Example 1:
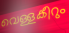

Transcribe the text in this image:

വെള്ളകീറും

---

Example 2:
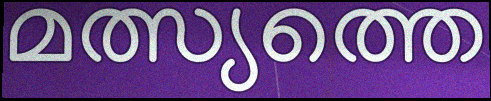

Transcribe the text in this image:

മത്സ്യത്തെ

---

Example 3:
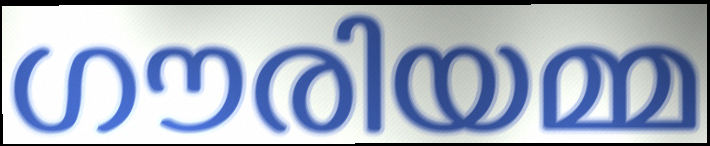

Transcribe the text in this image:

ഗൗരിയമ്മ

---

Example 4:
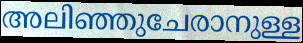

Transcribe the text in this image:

അലിഞ്ഞുചേരാനുള്ള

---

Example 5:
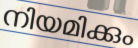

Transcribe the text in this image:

നിയമിക്കും